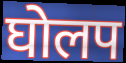
घोलप